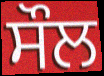
ਸੌਲ